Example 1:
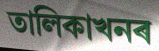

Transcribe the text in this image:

তালিকাখনৰ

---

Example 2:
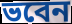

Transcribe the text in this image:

ভবেন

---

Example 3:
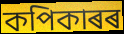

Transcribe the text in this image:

কপিকাৰৰ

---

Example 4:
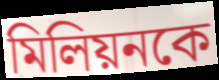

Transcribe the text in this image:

মিলিয়নকে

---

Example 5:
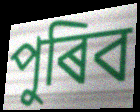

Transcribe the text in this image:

পুৰিব